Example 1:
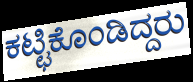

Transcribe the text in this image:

ಕಟ್ಟಿಕೊಂಡಿದ್ದರು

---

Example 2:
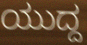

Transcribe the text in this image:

ಯುದ್ದ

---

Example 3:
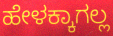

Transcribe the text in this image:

ಹೇಳಕ್ಕಾಗಲ್ಲ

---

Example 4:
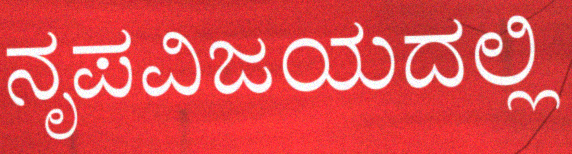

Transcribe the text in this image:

ನೃಪವಿಜಯದಲ್ಲಿ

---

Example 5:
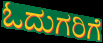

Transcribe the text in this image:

ಓದುಗರಿಗೆ